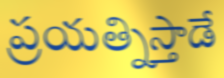
ప్రయత్నిస్తాడే